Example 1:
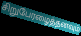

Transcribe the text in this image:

சிறுபேரழைத்தனவும்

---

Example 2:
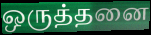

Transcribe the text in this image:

ஒருத்தனை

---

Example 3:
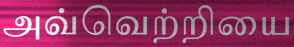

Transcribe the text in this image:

அவ்வெற்றியை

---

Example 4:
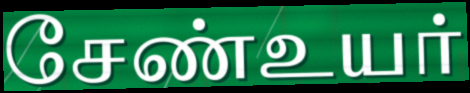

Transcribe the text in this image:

சேண்உயர்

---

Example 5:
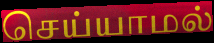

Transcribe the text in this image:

செய்யாமல்